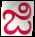
ಜಿ